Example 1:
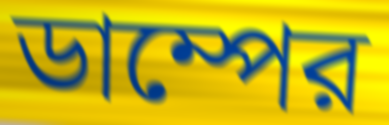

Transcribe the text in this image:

ডাম্পের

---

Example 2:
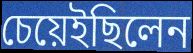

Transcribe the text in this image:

চেয়েইছিলেন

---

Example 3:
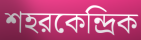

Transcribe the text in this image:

শহরকেন্দ্রিক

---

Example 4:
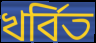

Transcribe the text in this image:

খর্বিত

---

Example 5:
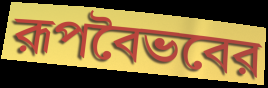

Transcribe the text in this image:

রূপবৈভবের